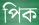
পিক